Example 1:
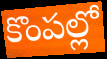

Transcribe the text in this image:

కొంపల్లో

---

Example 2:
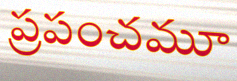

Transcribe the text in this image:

ప్రపంచమూ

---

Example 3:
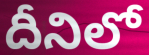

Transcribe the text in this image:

దీనిలో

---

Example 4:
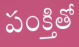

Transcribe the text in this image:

పంక్తితో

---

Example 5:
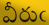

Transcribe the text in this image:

వీరుఁ